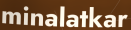
minalatkar